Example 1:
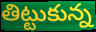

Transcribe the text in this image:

తిట్టుకున్న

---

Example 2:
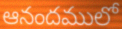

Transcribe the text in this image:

ఆనందములో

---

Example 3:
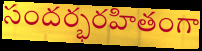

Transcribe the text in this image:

సందర్భరహితంగా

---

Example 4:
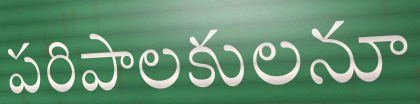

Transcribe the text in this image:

పరిపాలకులనూ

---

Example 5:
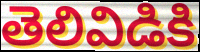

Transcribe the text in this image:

తెలివిడికి